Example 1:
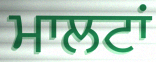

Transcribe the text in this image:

ਮਾਲਟਾਂ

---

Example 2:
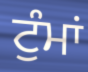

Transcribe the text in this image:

ਟੁੰਮਾਂ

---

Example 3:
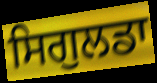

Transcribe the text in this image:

ਸਿਗੁਲਡਾ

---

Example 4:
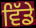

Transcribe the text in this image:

ਵਿੱਡੇ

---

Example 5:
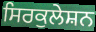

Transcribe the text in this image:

ਸਿਰਕੁਲੇਸ਼ਨ